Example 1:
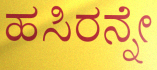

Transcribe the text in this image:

ಹಸಿರನ್ನೇ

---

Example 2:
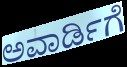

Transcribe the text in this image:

ಅವಾರ್ಡಿಗೆ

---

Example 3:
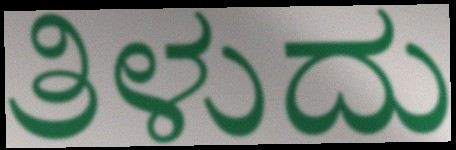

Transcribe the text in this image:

ತಿಳುದು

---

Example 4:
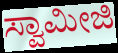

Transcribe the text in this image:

ಸ್ವಾಮೀಜಿ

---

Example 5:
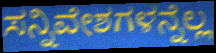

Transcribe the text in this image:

ಸನ್ನಿವೇಶಗಳನ್ನೆಲ್ಲ